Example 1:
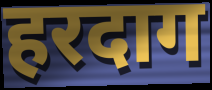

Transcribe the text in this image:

हरदाग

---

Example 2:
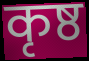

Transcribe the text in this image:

कृष्ठ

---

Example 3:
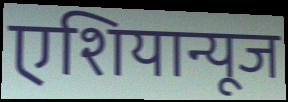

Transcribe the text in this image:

एशियान्यूज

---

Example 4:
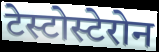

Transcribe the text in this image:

टेस्‍टोस्‍टेरोन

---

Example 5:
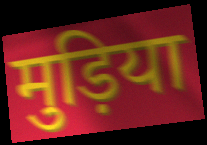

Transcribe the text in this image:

मुड़िया